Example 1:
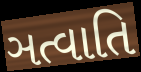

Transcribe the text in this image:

ઞત્વાતિ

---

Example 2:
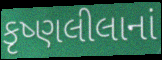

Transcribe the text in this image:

કૃષ્ણલીલાનાં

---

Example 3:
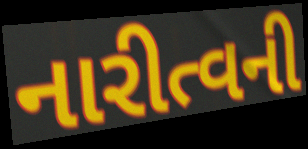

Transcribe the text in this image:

નારીત્વની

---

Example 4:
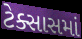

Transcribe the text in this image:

ટેક્સાસમાં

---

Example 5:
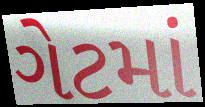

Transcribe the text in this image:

ગેટમાં